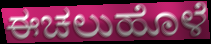
ಈಚಲುಹೊಳೆ